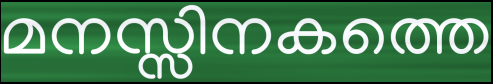
മനസ്സിനകത്തെ